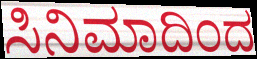
ಸಿನಿಮಾದಿಂದ